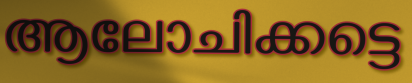
ആലോചിക്കട്ടെ